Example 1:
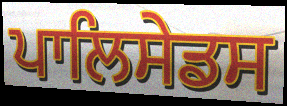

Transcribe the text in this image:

ਪਾਲਿਸੇਡਸ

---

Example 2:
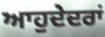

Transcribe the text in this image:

ਆਹੁਦੇਦਰਾਂ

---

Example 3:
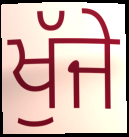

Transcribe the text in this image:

ਖੁੱਜੇ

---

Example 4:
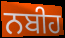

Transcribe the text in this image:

ਨਬੀਹ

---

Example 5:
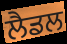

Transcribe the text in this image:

ਲੈਡਲ